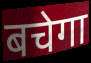
बचेगा